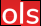
ols